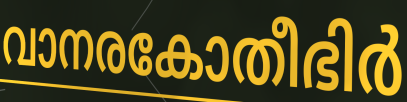
വാനരകോതീഭിർ